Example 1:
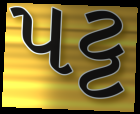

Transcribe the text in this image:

પટ્ટ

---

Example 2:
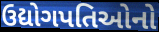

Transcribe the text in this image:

ઉદ્યોગપતિઓનો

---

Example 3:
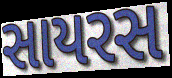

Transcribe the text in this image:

સાયરસ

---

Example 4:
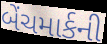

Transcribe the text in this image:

બેંચમાર્કની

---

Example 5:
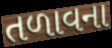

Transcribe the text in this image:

તળાવના